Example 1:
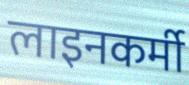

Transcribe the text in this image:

लाइनकर्मी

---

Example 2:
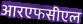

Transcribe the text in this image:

आरएफसीएल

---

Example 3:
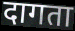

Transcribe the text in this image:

दागता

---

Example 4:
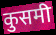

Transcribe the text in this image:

कुसमी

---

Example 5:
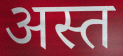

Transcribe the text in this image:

अस्त